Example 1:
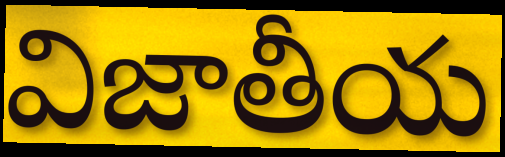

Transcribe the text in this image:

విజాతీయ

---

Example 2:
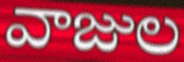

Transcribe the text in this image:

వాజుల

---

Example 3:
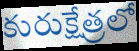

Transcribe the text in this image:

కురుక్షేత్రలో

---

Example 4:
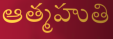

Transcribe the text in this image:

ఆత్మహుతి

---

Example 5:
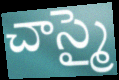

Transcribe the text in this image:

చాస్మై